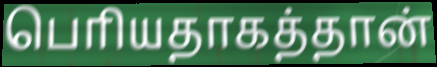
பெரியதாகத்தான்